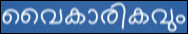
വൈകാരികവും